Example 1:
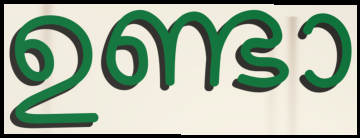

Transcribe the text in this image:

ഉണ്ടാ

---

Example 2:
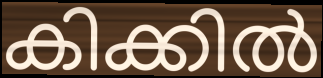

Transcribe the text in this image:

കിക്കിൽ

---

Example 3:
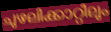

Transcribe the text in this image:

ചുഴലിക്കാറ്റിലും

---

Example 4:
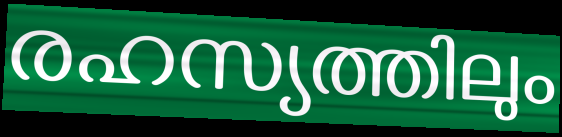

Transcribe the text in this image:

രഹസ്യത്തിലും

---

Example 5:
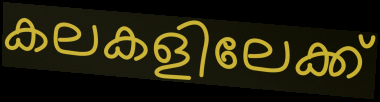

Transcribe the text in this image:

കലകളിലേക്ക്